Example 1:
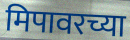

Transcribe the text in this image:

मिपावरच्या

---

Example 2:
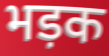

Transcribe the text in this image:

भड़क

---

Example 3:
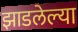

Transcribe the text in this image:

झाडलेल्या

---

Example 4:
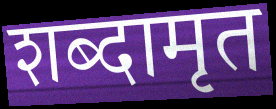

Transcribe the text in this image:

शब्दामृत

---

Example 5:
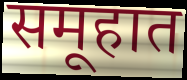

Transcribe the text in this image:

समूहात